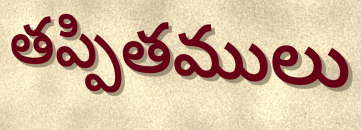
తప్పితములు